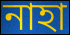
নাহা